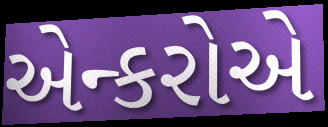
એન્કરોએ